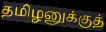
தமிழனுக்குத்